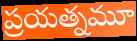
ప్రయత్నమూ